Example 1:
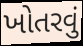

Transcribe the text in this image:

ખોતરવું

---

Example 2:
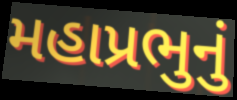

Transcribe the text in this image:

મહાપ્રભુનું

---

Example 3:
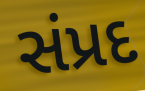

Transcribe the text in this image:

સંપ્રદ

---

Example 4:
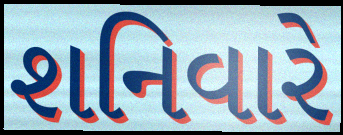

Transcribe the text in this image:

શનિવારે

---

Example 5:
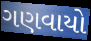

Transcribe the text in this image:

ગણવાયો